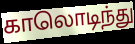
காலொடிந்து